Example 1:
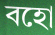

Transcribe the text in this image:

বহো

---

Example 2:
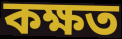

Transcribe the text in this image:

কক্ষত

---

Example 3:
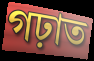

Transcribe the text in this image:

গঢ়াত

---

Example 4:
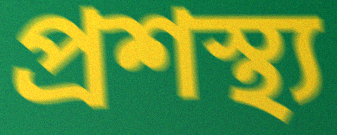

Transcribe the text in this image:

প্ৰশস্থ্য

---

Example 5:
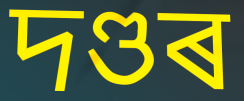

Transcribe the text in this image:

দণ্ডৰ